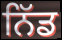
ਨਿੱਡ